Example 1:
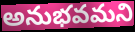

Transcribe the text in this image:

అనుభవమని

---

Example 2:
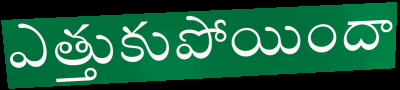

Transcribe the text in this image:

ఎత్తుకుపోయిందా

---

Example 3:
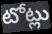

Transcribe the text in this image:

టోట్లు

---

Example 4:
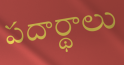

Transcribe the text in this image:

పదార్థాలు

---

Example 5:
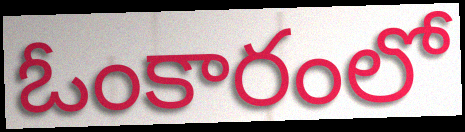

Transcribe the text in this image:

ఓంకారంలో